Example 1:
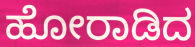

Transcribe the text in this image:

ಹೋರಾಡಿದ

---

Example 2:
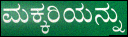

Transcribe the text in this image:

ಮಕ್ಕರಿಯನ್ನು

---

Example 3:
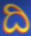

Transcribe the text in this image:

ದಿ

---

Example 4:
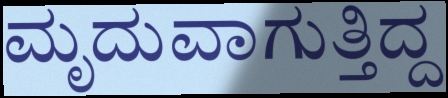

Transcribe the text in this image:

ಮೃದುವಾಗುತ್ತಿದ್ದ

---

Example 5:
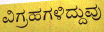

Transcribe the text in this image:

ವಿಗ್ರಹಗಳಿದ್ದುವು